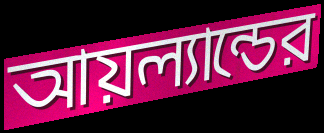
আয়ল্যান্ডের